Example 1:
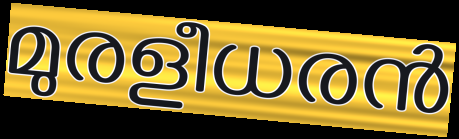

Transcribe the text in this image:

മുരളീധരൻ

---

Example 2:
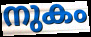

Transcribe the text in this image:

നുകം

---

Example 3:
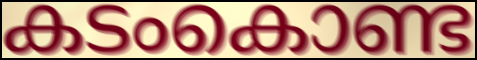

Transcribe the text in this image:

കടംകൊണ്ട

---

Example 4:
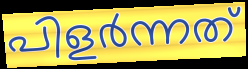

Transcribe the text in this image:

പിളർന്നത്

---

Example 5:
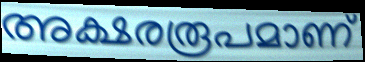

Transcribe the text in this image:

അക്ഷരരൂപമാണ്